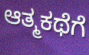
ಆತ್ಮಕಥೆಗೆ